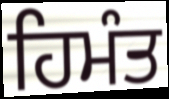
ਹਿਮੰਤ